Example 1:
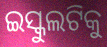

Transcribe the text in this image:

ଇସ୍କୁଲଟିକୁ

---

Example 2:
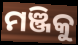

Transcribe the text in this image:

ମଞ୍ଜିକୁ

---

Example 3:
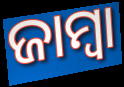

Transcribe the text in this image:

ଜାମ୍ବା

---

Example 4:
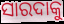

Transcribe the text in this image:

ସାରଦାକୁ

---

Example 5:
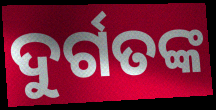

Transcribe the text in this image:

ଦୁର୍ଗତଙ୍କ